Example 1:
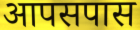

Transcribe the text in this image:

आपसपास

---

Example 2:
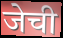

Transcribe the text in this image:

जेची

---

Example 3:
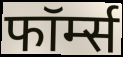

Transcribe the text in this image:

फॉर्म्स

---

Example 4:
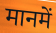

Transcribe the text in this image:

मानमें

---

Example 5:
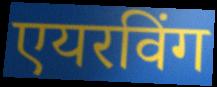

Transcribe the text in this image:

एयरविंग